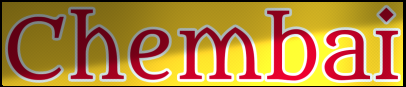
Chembai